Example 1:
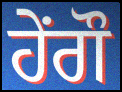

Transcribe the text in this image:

ਹੇਂਗੌ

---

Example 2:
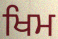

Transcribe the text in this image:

ਖਿਮ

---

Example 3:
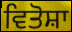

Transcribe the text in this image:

ਵਿਤੋਸ਼ਾ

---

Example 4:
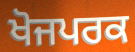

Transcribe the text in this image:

ਖੋਜਪਰਕ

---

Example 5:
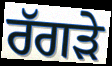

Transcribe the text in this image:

ਰੱਗੜੇ